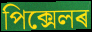
পিক্সেলৰ